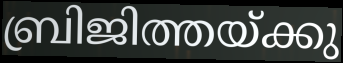
ബ്രിജിത്തയ്ക്കു